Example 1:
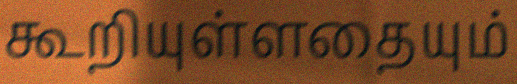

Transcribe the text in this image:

கூறியுள்ளதையும்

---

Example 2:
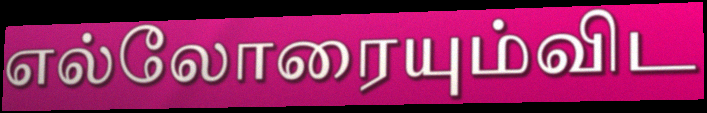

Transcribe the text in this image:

எல்லோரையும்விட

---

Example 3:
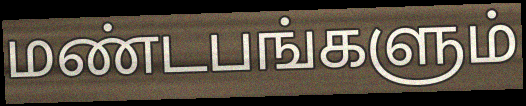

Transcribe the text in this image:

மண்டபங்களும்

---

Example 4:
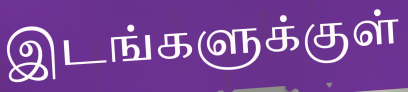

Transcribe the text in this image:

இடங்களுக்குள்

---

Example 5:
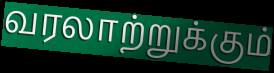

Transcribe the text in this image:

வரலாற்றுக்கும்